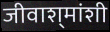
जीवाश्मांशी